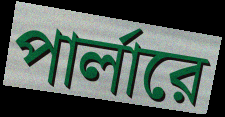
পার্লারে